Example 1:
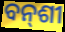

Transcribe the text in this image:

ବନ୍‍ଶୀ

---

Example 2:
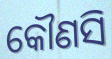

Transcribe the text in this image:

କୌଣସି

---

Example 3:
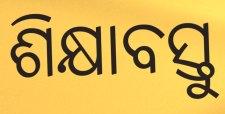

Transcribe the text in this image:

ଶିକ୍ଷାବସ୍ତୁ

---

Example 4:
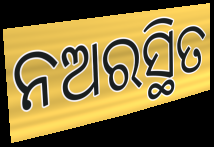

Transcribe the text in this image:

ନଅରସ୍ଥିତ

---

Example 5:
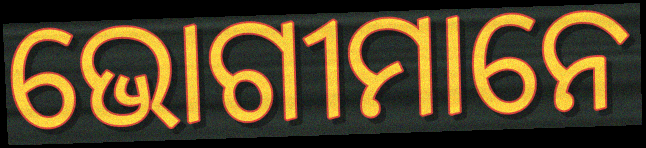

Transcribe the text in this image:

ଭୋଗୀମାନେ